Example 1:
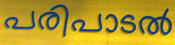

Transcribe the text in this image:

പരിപാടൽ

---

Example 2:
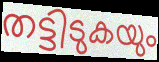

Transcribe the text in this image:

തട്ടിടുകയും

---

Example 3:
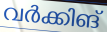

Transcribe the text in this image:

വർക്കിങ്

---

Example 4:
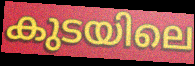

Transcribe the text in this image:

കുടയിലെ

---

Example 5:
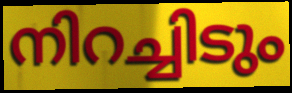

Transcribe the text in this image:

നിറച്ചിടും